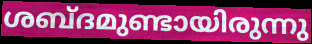
ശബ്ദമുണ്ടായിരുന്നു